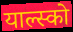
याल्स्को